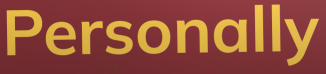
Personally